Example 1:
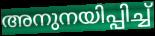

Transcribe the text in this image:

അനുനയിപ്പിച്ച്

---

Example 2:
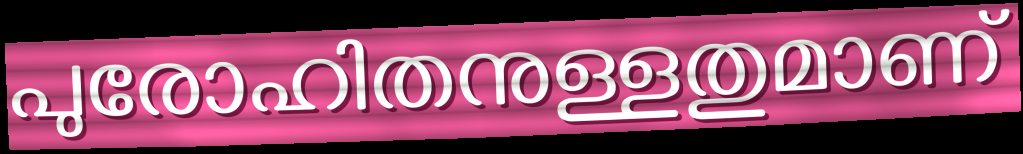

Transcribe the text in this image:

പുരോഹിതനുള്ളതുമാണ്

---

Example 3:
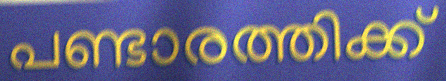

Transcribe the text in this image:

പണ്ടാരത്തിക്ക്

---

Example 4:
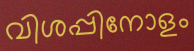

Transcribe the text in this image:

വിശപ്പിനോളം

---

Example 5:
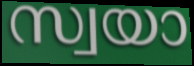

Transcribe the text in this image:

സ്വയാ